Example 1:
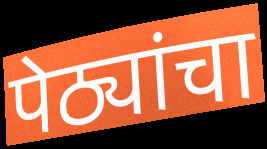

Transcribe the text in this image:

पेठ्यांचा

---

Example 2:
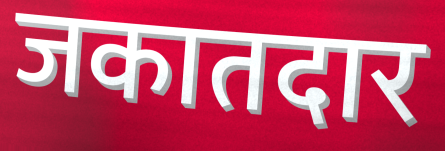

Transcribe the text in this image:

जकातदार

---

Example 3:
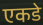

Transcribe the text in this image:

एकडे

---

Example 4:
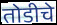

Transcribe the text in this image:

तोडीचे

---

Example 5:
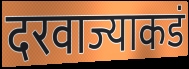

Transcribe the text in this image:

दरवाज्याकडं